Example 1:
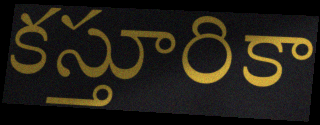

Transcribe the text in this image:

కస్తూరికా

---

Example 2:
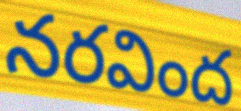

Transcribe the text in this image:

నరవింద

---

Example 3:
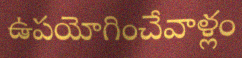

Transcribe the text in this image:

ఉపయోగించేవాళ్లం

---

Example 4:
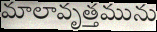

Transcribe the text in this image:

మాలావృత్తమును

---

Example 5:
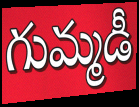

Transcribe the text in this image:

గుమ్మడీ